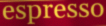
espresso